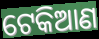
ଟେକିଆଣ